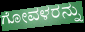
ಗೋವಳರನ್ನು